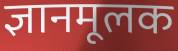
ज्ञानमूलक